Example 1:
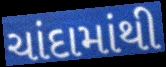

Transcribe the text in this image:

ચાંદામાંથી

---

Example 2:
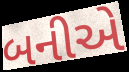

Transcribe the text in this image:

બનીએ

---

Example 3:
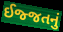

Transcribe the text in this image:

ઈજ્જતનું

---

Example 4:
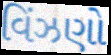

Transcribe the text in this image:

વિંઝણો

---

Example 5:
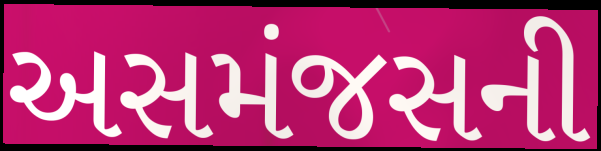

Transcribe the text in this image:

અસમંજસની